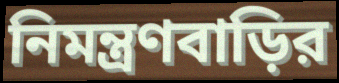
নিমন্ত্রণবাড়ির